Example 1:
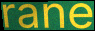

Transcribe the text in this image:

rane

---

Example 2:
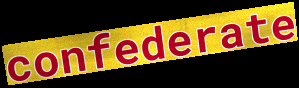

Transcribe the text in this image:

confederate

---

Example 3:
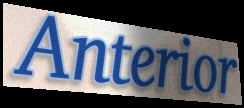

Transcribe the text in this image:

Anterior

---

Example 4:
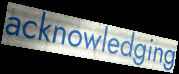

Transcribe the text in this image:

acknowledging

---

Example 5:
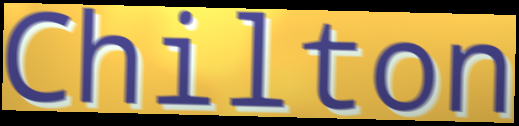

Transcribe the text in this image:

Chilton